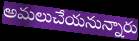
అమలుచేయనున్నారు